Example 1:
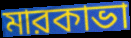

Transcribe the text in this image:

মারকাভা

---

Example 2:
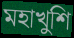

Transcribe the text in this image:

মহাখুশি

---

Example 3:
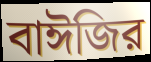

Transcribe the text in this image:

বাঈজির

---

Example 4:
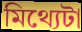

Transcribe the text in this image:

মিথ্যেটা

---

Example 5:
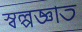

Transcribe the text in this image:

স্বল্পজ্ঞাত